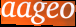
aageo